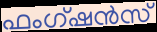
ഫംഗ്ഷൻസ്